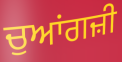
ਚੁਆਂਗਜ਼ੀ